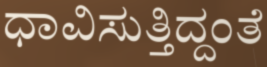
ಧಾವಿಸುತ್ತಿದ್ದಂತೆ